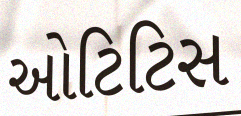
ઓટિટિસ